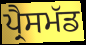
ਪ੍ਰੈਸਮੱਡ